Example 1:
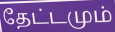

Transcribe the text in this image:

தேட்டமும்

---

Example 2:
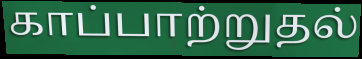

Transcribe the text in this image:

காப்பாற்றுதல்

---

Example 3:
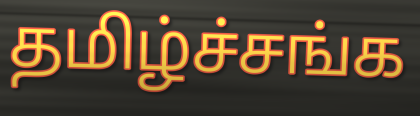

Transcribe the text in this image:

தமிழ்ச்சங்க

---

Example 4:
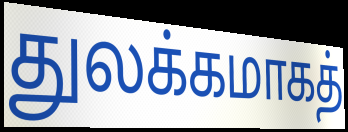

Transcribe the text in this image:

துலக்கமாகத்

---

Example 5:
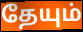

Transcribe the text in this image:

தேயும்